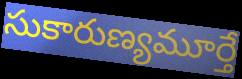
సుకారుణ్యమూర్తే